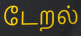
டேறல்